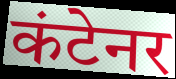
कंटेनर